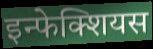
इन्फेक्शियस